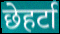
छेहर्टा